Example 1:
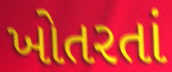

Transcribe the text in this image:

ખોતરતાં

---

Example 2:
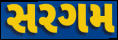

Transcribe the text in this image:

સરગમ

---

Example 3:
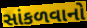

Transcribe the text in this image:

સાંકળવાનો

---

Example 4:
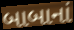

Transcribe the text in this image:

બાબાનાં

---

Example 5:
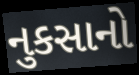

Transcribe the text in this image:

નુકસાનો